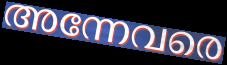
അന്നേവരെ